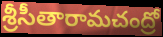
శ్రీసీతారామచంద్రో